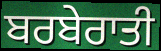
ਬਰਬੇਰਾਤੀ